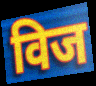
विज